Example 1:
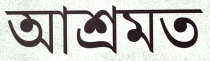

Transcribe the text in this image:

আশ্ৰমত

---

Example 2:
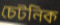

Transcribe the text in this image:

চেটনিক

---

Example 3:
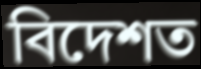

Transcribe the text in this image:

বিদেশত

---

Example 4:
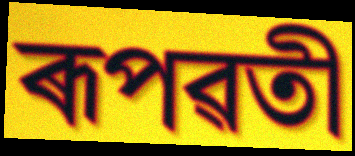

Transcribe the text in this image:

ৰূপৱতী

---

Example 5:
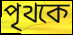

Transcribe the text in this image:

পৃথকে